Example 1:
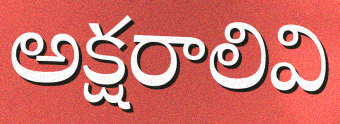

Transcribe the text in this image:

అక్షరాలివి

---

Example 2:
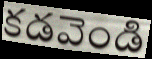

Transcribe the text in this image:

కడవెండి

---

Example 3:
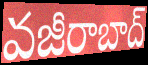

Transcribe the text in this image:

వజీరాబాద్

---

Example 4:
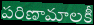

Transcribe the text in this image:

పరిణామాలకీ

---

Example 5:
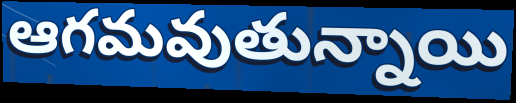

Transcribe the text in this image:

ఆగమవుతున్నాయి